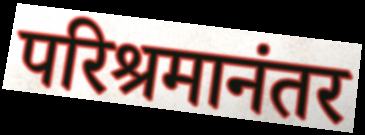
परिश्रमानंतर